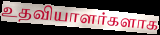
உதவியாளர்களாக